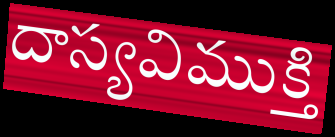
దాస్యవిముక్తి